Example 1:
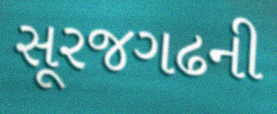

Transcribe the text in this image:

સૂરજગઢની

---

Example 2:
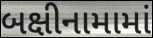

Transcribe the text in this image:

બક્ષીનામામાં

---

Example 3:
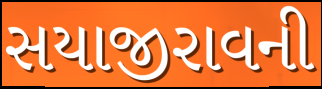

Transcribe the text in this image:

સયાજીરાવની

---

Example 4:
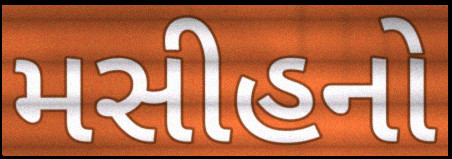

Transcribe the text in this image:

મસીહનો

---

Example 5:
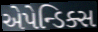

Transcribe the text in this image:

એપેન્ડિક્સ